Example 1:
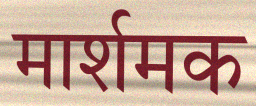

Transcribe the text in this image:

मार्शमक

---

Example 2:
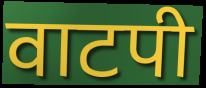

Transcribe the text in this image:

वाटपी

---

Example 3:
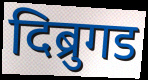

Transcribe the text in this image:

दिब्रुगड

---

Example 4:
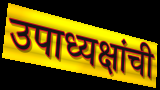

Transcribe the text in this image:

उपाध्यक्षांची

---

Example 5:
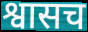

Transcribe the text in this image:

श्वासच